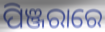
ପିଞ୍ଜରାରେ